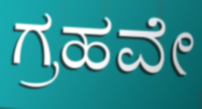
ಗ್ರಹವೇ